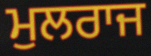
ਮੁਲਰਾਜ